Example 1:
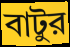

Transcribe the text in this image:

বাটুর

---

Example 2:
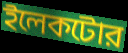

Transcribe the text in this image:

ইলেকটোর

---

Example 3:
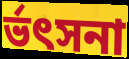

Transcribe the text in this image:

র্ভৎসনা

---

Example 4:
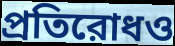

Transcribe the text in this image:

প্রতিরোধও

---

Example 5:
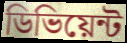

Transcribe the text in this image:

ডিভিয়েন্ট